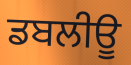
ਡਬਲੀਊ